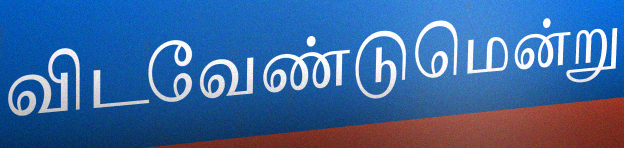
விடவேண்டுமென்று